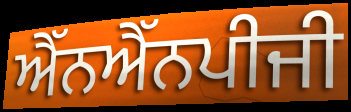
ਐੱਨਐੱਨਪੀਜੀ